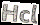
Hcl